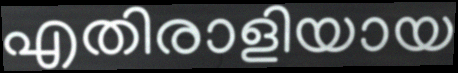
എതിരാളിയായ